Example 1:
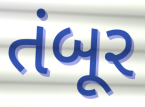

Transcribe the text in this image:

તંબૂર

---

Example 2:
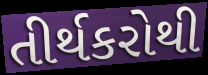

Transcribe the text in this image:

તીર્થકરોથી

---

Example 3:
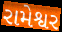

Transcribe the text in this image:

રામેશ્વર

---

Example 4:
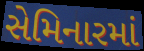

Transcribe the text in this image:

સેમિનારમાં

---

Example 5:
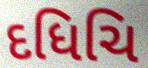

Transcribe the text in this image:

દધિચિ